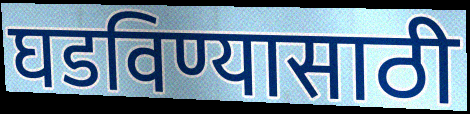
घडविण्यासाठी